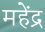
महेंद्र